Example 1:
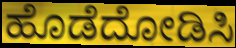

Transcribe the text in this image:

ಹೊಡೆದೋಡಿಸಿ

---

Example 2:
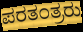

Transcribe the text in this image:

ಪರತಂತ್ರರು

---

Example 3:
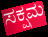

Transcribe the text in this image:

ಸಕ್ಷಮ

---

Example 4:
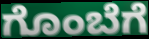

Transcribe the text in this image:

ಗೊಂಬೆಗೆ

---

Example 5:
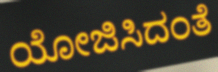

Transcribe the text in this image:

ಯೋಜಿಸಿದಂತೆ